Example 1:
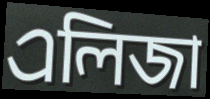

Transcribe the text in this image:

এলিজা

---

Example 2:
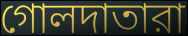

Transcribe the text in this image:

গোলদাতারা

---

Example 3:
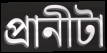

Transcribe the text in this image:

প্রানীটা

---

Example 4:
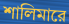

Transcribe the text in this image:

শালিমারে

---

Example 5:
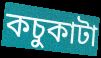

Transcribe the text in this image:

কচুকাটা